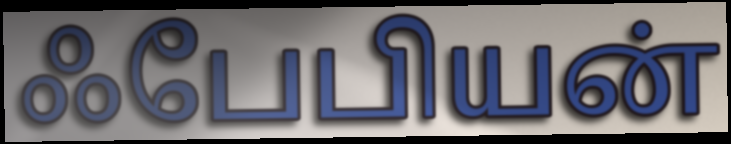
ஃபேபியன்